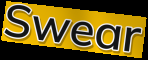
Swear